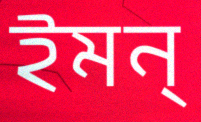
ইমন্